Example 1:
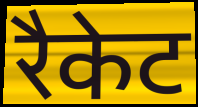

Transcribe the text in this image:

रैकेट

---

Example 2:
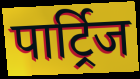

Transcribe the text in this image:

पार्ट्रिज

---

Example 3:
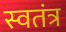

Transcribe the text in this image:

स्‍वतंत्र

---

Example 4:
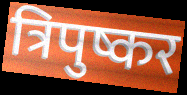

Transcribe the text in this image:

त्रिपुष्कर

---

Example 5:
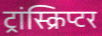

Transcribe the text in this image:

ट्रांस्क्रिप्टर